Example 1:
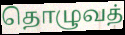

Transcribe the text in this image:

தொழுவத்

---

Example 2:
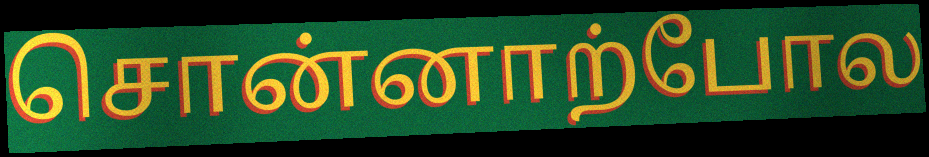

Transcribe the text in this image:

சொன்னாற்போல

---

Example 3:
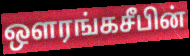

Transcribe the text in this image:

ஔரங்கசீபின்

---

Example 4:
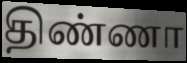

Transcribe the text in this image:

திண்ணா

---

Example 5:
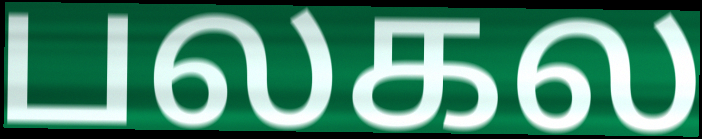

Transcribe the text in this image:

பலகல